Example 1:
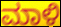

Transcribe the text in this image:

ಮಾಳಿ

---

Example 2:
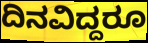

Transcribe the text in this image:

ದಿನವಿದ್ದರೂ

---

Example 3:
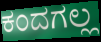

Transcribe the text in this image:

ಕಂದಗಲ್ಲ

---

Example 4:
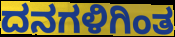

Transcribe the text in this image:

ದನಗಳಿಗಿಂತ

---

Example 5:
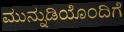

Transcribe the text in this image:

ಮುನ್ನುಡಿಯೊಂದಿಗೆ